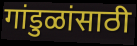
गांडुळांसाठी